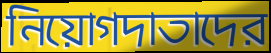
নিয়োগদাতাদের